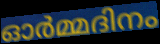
ഓർമ്മദിനം